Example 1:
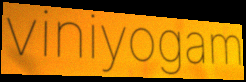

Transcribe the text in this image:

viniyogam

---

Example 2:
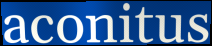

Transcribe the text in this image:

aconitus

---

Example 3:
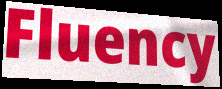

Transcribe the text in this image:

Fluency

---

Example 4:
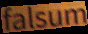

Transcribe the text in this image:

falsum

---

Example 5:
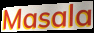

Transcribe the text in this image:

Masala